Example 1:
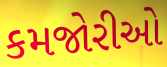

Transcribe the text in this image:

કમજોરીઓ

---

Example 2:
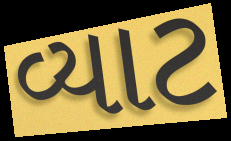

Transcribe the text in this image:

વ્યાટ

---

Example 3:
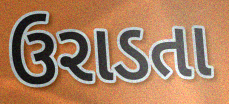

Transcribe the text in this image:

ઉરાડતા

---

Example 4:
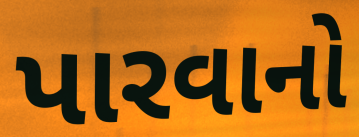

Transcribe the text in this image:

પારવાનો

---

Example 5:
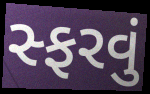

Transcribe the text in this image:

સ્ફરવું